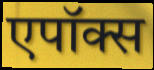
एपॉक्स